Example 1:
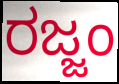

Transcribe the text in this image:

ರಜ್ಜಂ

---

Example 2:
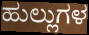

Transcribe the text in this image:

ಹುಲ್ಲುಗಳ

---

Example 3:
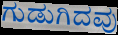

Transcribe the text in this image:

ಗುಡುಗಿದವು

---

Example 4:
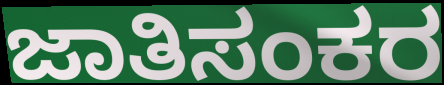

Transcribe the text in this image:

ಜಾತಿಸಂಕರ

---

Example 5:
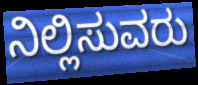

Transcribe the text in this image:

ನಿಲ್ಲಿಸುವರು